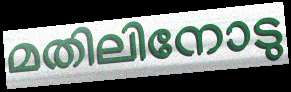
മതിലിനോടു